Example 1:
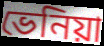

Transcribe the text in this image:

ভেনিয়া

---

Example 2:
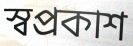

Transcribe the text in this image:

স্বপ্ৰকাশ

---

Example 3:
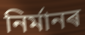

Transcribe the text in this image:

নিৰ্মানৰ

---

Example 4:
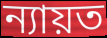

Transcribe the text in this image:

ন্যায়ত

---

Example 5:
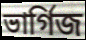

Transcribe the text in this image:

ভাৰ্গিজ